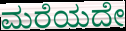
ಮರೆಯದೇ